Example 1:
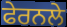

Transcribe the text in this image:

ਫੇਰਨਲੇ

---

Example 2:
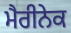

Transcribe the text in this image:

ਮੈਰੀਨੇਕ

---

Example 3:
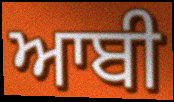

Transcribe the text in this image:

ਆਬੀ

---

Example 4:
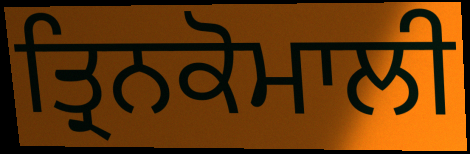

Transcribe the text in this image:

ਤ੍ਰਿਨਕੋਮਾਲੀ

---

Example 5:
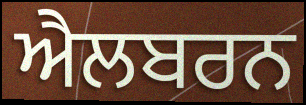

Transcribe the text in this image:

ਐਲਬਰਨ